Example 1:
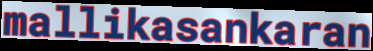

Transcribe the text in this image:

mallikasankaran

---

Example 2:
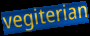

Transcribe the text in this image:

vegiterian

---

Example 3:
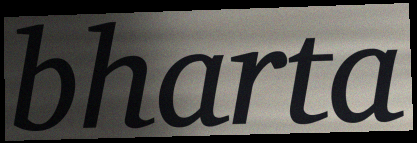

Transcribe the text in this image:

bharta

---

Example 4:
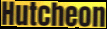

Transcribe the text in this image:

Hutcheon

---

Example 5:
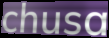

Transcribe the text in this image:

chusa